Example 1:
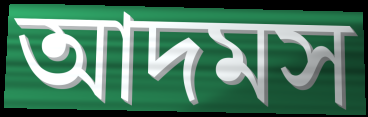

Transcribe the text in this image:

আদমস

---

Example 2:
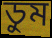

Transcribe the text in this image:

ডুম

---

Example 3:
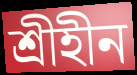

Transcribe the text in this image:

শ্রীহীন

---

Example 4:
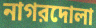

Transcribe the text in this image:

নাগরদোলা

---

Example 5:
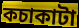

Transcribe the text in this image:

কচাকাটা